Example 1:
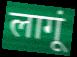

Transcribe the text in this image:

लागूं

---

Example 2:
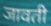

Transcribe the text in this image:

जावती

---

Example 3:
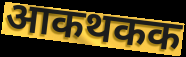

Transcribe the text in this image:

आकथकक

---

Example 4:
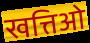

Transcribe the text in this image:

खत्तिओ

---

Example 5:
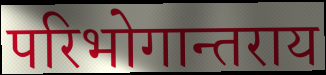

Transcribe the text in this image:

परिभोगान्तराय